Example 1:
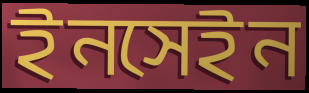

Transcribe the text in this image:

ইনসেইন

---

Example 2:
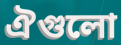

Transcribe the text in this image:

ঐগুলো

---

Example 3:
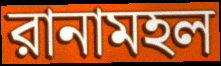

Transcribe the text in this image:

রানামহল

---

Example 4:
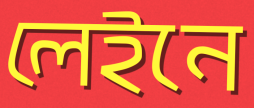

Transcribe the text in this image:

লেইনে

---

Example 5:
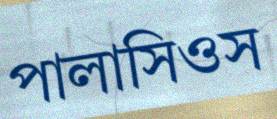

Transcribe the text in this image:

পালাসিওস